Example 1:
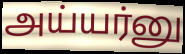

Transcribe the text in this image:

அய்யர்னு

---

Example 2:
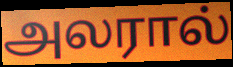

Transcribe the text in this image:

அலரால்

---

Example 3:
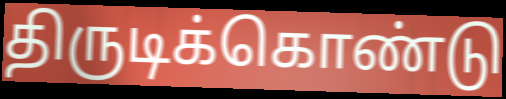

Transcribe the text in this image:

திருடிக்கொண்டு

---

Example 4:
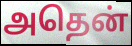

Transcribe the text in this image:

அதென்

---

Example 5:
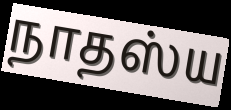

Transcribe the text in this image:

நாதஸ்ய